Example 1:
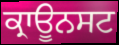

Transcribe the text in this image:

ਕ੍ਰਾਊਨਸਟ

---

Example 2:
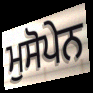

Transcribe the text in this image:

ਮੁਸੋਪੇਨ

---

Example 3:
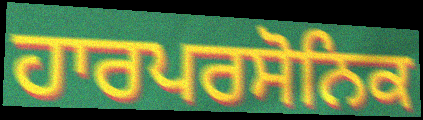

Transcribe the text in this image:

ਹਾਰਪਰਸੋਨਿਕ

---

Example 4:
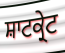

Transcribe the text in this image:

ਸ਼ਾਟਕ੍ਰੇਟ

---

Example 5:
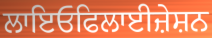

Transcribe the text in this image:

ਲਾਇਓਫਿਲਾਈਜ਼ੇਸ਼ਨ